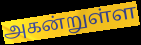
அகன்றுள்ள